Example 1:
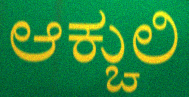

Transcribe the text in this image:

ಆಕ್ಚುಲಿ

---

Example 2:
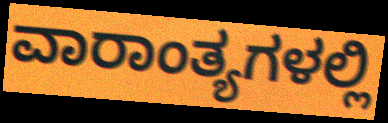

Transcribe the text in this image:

ವಾರಾಂತ್ಯಗಳಲ್ಲಿ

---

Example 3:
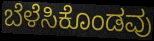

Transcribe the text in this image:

ಬೆಳೆಸಿಕೊಂಡವು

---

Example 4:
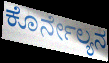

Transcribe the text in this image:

ಕೊರ್ನೇಲ್ಯನ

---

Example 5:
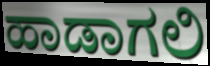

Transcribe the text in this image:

ಹಾಡಾಗಲಿ